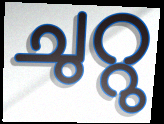
ചുറ്റു